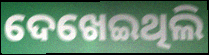
ଦେଖେଇଥିଲି